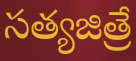
సత్యజిత్రే